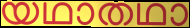
യഥാതഥാ